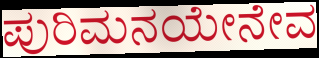
ಪುರಿಮನಯೇನೇವ